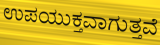
ಉಪಯುಕ್ತವಾಗುತ್ತವೆ